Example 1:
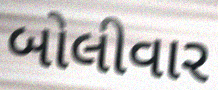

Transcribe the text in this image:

બોલીવાર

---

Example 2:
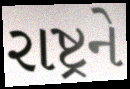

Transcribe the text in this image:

રાષ્ટ્રને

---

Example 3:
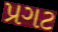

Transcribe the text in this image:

પ્રગટ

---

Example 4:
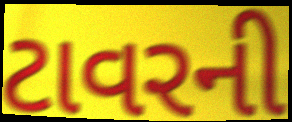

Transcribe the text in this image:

ટાવરની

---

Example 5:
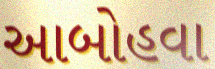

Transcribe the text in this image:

આબોહવા